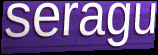
seragu